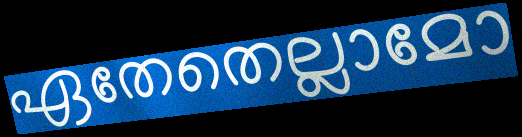
ഏതേതെല്ലാമോ